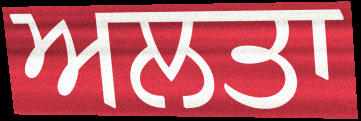
ਅਲਤਾ